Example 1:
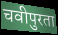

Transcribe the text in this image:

चवीपुरता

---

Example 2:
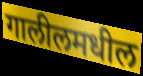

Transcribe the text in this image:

गालीलमधील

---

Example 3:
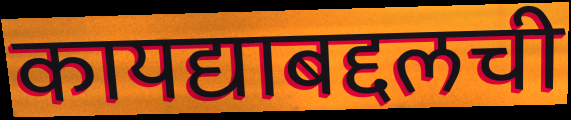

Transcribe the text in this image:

कायद्याबद्दलची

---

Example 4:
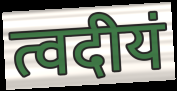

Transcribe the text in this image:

त्वदीयं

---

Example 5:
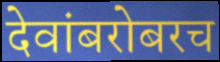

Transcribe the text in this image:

देवांबरोबरच